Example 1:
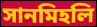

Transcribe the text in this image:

সানমিহলি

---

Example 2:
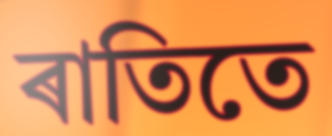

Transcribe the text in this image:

ৰাতিতে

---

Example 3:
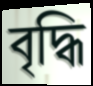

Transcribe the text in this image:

বৃদ্ধি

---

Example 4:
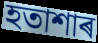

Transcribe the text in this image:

হতাশাৰ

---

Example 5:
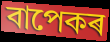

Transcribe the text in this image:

বাপেকৰ